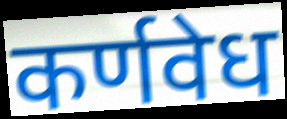
कर्णवेध